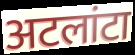
अटलांटा